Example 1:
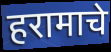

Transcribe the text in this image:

हरामाचे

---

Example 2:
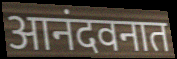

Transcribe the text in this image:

आनंदवनात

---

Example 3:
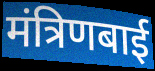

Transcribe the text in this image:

मंत्रिणबाई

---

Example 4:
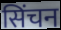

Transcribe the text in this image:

सिंचन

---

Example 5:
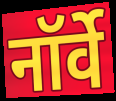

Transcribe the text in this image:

नॉर्वे